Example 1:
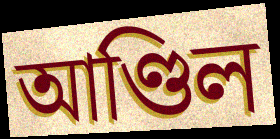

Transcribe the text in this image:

আণ্ডিল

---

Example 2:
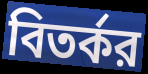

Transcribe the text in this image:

বিতর্কর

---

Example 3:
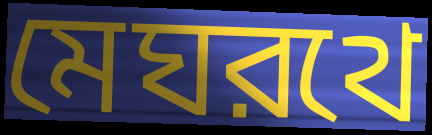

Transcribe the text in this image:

মেঘরথে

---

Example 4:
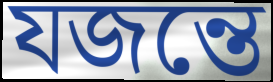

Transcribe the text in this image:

যজন্তে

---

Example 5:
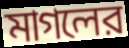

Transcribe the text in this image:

মাগলের